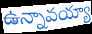
ఉన్నావయ్యా